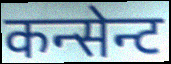
कन्सेन्ट